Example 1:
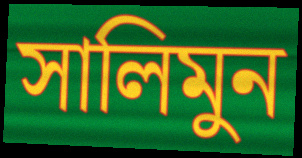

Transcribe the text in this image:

সালিমুন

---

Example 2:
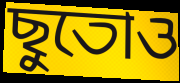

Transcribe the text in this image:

ছুতোও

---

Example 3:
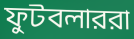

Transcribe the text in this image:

ফুটবলাররা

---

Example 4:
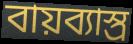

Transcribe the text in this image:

বায়ব্যাস্ত্র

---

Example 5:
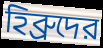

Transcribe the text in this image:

হিব্রুদের